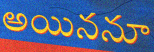
అయిననూ